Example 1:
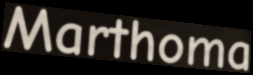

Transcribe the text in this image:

Marthoma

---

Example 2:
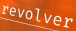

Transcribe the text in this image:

revolver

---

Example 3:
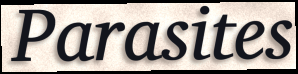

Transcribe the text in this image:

Parasites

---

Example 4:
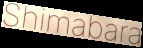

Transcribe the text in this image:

Shimabara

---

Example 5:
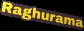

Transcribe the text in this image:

Raghurama